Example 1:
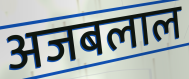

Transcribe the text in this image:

अजबलाल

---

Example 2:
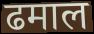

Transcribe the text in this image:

ढमाल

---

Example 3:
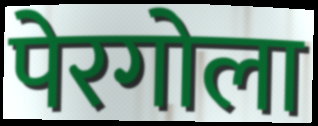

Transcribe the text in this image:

पेरगोला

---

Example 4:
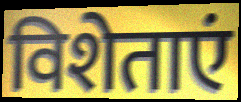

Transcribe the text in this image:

विशेताएं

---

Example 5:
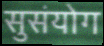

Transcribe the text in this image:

सुसंयोग